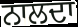
ਨਾਲਦਾ